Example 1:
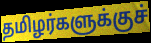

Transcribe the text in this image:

தமிழர்களுக்குச்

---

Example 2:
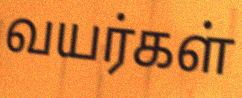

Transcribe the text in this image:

வயர்கள்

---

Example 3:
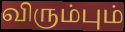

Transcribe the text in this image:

விரும்பும்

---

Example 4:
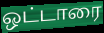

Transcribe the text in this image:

ஒட்டாரை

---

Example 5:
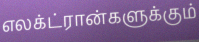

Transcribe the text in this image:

எலக்ட்ரான்களுக்கும்